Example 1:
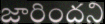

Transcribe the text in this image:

జారిందని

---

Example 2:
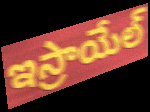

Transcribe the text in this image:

ఇస్రాయేల్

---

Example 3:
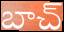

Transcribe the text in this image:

బాచ్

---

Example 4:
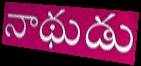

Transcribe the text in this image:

నాథుడు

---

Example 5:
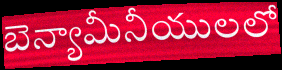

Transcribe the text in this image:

బెన్యామీనీయులలో